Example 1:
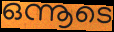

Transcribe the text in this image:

ഒന്നൂടെ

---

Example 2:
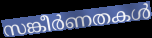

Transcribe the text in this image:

സങ്കീർണതകൾ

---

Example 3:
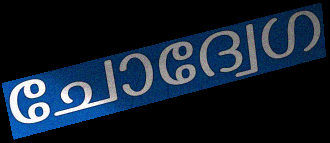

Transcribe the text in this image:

ചോദ്വേഗ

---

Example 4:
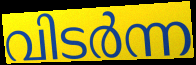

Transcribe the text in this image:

വിടർന്ന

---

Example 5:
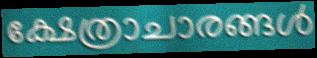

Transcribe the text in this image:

ക്ഷേത്രാചാരങ്ങൾ